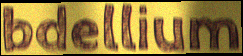
bdellium